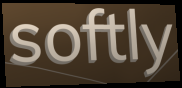
softly